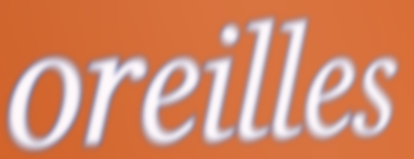
oreilles